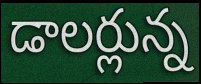
డాలర్లున్న